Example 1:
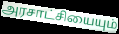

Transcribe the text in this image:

அரசாட்சியையும்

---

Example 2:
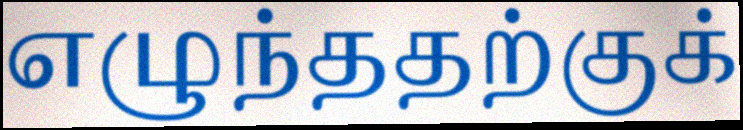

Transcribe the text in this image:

எழுந்ததற்குக்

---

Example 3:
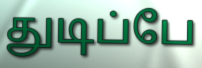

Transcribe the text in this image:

துடிப்பே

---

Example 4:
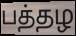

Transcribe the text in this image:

பத்தழ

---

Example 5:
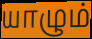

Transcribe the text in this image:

யாழும்